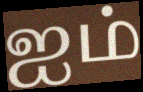
ஐம்